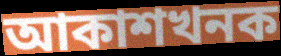
আকাশখনক